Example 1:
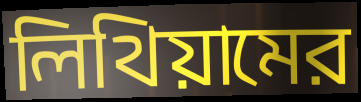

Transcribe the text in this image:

লিথিয়ামের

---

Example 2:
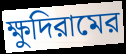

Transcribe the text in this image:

ক্ষুদিরামের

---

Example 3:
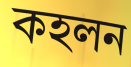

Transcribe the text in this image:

কহলন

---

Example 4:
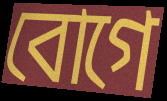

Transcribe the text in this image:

বোগে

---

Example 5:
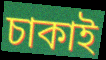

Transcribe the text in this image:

চাকাই